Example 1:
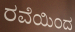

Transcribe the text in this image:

ರವೆಯಿಂದ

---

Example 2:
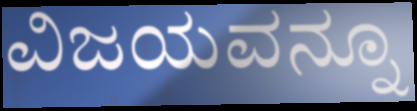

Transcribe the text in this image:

ವಿಜಯವನ್ನೂ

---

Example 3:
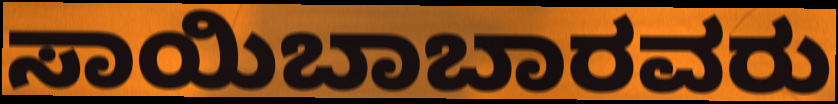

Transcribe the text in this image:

ಸಾಯಿಬಾಬಾರವರು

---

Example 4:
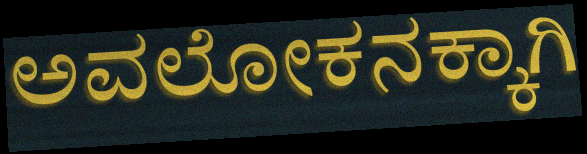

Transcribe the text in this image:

ಅವಲೋಕನಕ್ಕಾಗಿ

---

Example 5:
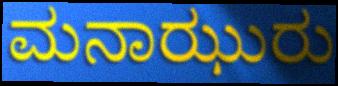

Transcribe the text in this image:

ಮನಾಝುರು